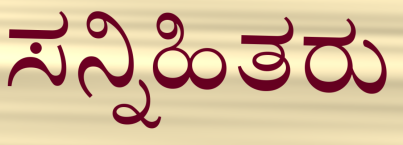
ಸನ್ನಿಹಿತರು